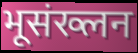
भूसंख्लन